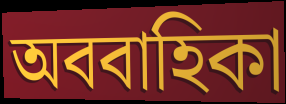
অববাহিকা